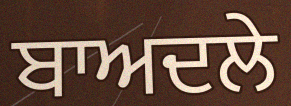
ਬਾਅਦਲੇ